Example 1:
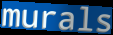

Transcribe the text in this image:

murals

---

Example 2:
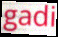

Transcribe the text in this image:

gadi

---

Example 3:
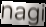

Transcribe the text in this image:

nagi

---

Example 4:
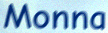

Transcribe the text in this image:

Monna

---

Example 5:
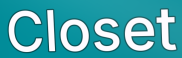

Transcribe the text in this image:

Closet